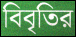
বিবৃতির